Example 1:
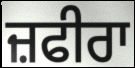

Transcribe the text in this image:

ਜ਼ਫੀਰਾ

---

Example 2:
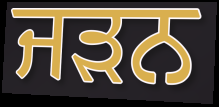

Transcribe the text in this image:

ਜੜਨ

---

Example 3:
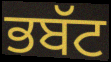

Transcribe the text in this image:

ਭਬੱਟ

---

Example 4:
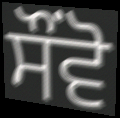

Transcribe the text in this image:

ਸੌਂਵੋ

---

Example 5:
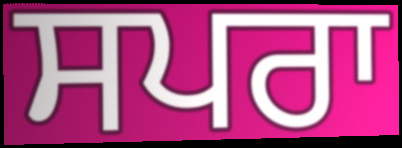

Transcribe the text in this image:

ਸਪਰਾ